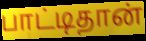
பாட்டிதான்